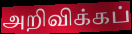
அறிவிக்கப்